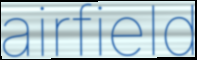
airfield